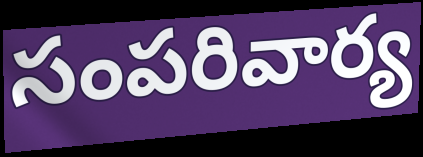
సంపరివార్య